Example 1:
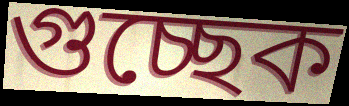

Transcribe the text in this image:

গুচ্ছেক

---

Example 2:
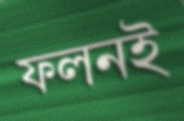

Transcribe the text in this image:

ফলনই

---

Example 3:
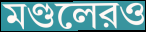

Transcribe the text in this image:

মণ্ডলেরও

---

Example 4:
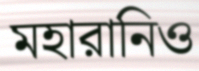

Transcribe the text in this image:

মহারানিও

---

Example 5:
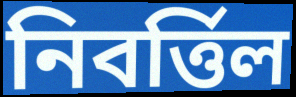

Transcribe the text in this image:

নিবর্ত্তিল